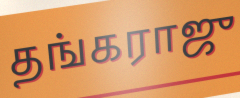
தங்கராஜு